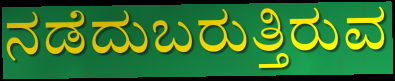
ನಡೆದುಬರುತ್ತಿರುವ